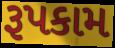
રૂપકામ